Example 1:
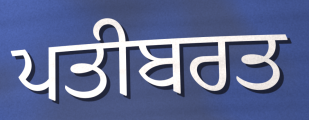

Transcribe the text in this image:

ਪਤੀਬਰਤ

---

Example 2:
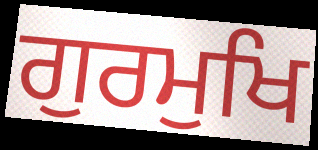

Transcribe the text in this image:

ਗੁਰਮੁਖਿ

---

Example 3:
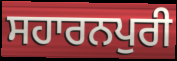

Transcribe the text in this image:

ਸਹਾਰਨਪੁਰੀ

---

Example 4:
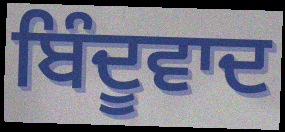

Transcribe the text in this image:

ਬਿੰਦੂਵਾਦ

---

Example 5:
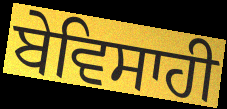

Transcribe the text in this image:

ਬੇਵਿਸਾਹੀ